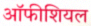
ऑफीशियल